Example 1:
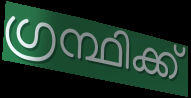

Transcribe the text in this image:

ഗ്രന്ഥിക്ക്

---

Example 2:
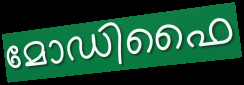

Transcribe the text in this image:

മോഡിഫൈ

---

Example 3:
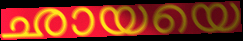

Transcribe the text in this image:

ഛായയെ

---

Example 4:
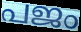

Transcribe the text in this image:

പജം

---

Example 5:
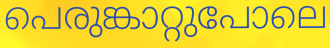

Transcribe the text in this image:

പെരുങ്കാറ്റുപോലെ